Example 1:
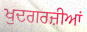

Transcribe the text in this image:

ਖੁਦਗਰਜ਼ੀਆਂ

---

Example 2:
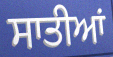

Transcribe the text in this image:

ਸਾਤੀਆਂ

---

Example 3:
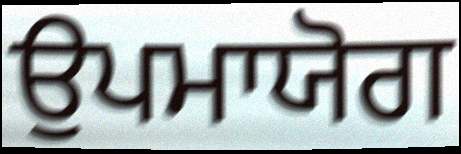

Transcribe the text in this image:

ਉਪਮਾਯੋਗ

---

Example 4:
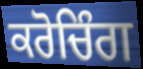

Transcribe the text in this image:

ਕਰੋਚਿੰਗ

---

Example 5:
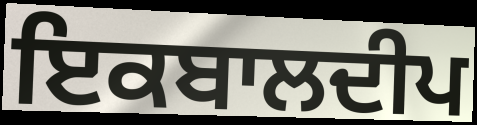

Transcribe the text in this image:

ਇਕਬਾਲਦੀਪ